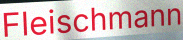
Fleischmann